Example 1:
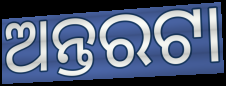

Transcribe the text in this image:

ଅନ୍ତରଟା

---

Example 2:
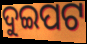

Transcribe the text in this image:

ଦୁଇପଟ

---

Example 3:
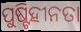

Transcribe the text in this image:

ପୁଷ୍ଟିହୀନତା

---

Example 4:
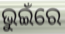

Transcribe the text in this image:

ଭୁଇଁରେ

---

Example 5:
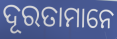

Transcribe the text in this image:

ଦୂରତାମାନେ